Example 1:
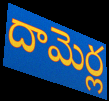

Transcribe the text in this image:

దామెర్ల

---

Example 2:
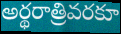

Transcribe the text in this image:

అర్థరాత్రివరకూ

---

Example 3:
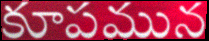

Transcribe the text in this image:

కూపమున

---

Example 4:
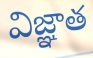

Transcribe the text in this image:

విజ్ఞాత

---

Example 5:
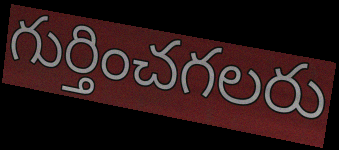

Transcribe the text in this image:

గుర్తించగలరు